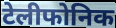
टेलीफोनिक